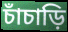
চাঁচাড়ি